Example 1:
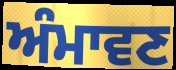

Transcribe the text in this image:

ਅੰਮਾਵਣ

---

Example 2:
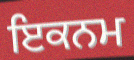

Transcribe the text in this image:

ਇਕਨਮ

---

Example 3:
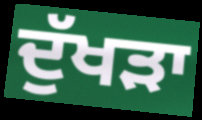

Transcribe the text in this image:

ਦੁੱਖਡ਼ਾ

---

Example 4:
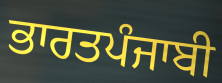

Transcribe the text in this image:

ਭਾਰਤਪੰਜਾਬੀ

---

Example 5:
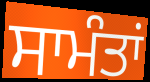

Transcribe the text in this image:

ਸਾਮੰਤਾਂ